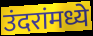
उंदरांमध्ये